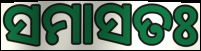
ସମାସତଃ